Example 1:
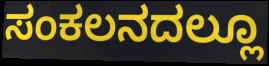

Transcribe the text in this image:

ಸಂಕಲನದಲ್ಲೂ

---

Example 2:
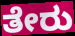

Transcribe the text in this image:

ತೇರು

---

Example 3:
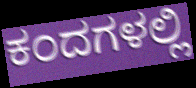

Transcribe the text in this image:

ಕಂದಗಳಲ್ಲಿ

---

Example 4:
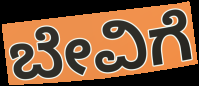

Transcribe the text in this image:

ಬೇವಿಗೆ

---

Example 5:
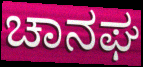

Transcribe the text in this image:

ಚಾನಘ